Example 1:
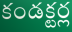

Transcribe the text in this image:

కండక్టర్ల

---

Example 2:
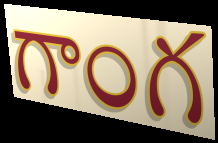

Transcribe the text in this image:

గాంగ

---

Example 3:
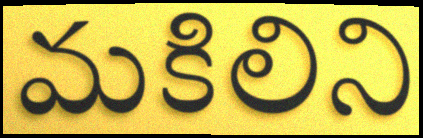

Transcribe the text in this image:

మకిలిని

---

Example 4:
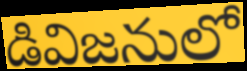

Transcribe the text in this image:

డివిజనులో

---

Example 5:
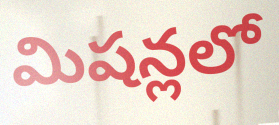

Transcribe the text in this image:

మిషన్లలో